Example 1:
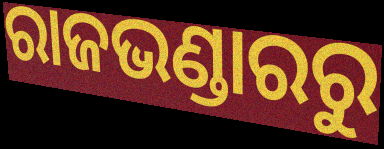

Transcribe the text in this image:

ରାଜଭଣ୍ଡାରରୁ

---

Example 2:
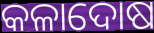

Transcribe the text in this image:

କଳାଦୋଷ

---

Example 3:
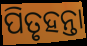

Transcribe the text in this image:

ପିତୃହନ୍ତା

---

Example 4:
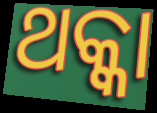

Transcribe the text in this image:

ଥକ୍କା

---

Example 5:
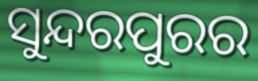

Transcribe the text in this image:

ସୁନ୍ଦରପୁରର